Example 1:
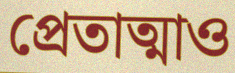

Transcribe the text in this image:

প্রেতাত্মাও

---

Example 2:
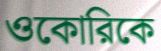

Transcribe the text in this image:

ওকোরিকে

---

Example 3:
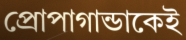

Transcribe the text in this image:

প্রোপাগান্ডাকেই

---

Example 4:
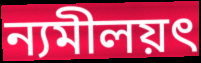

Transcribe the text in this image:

ন্যমীলয়ৎ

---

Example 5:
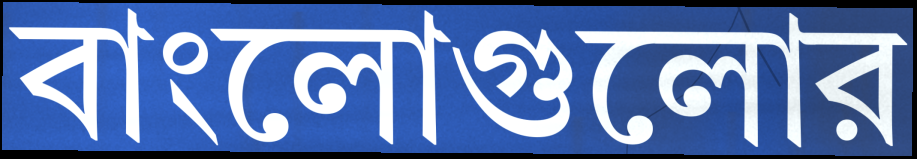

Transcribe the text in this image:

বাংলোগুলোর